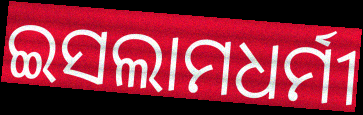
ଇସଲାମଧର୍ମୀ